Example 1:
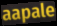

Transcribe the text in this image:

aapale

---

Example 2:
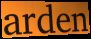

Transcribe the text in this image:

arden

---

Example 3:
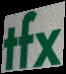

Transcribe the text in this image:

tfx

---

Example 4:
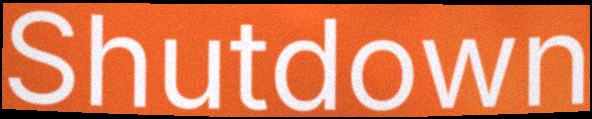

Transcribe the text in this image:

Shutdown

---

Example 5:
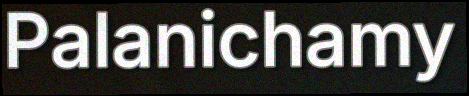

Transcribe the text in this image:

Palanichamy